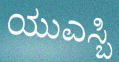
ಯುಎಸ್ಬಿ